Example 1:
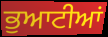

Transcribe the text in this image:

ਭੁਆਟੀਆਂ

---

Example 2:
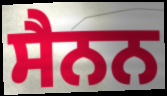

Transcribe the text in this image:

ਸੈਨਨ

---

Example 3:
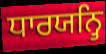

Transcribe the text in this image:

ਧਾਰਯਨ੍ਤਿ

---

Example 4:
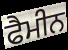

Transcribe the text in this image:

ਫੈਮੀਨ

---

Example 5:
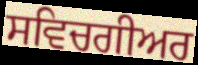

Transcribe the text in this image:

ਸਵਿਚਗੀਅਰ